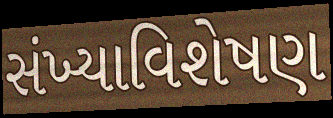
સંખ્યાવિશેષણ